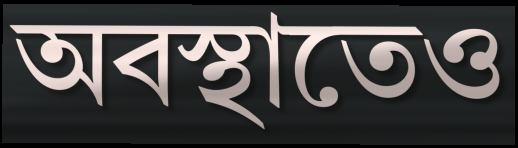
অবস্থাতেও